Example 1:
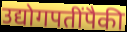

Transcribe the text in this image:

उद्योगपतींपैकी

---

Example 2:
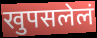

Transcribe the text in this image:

खुपसलेलं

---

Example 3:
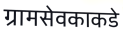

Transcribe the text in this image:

ग्रामसेवकाकडे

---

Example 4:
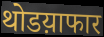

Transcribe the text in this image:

थोडय़ाफार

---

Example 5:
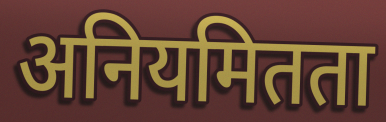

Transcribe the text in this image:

अनियमितता